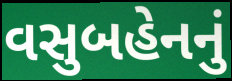
વસુબહેનનું